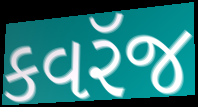
કવરૅજ